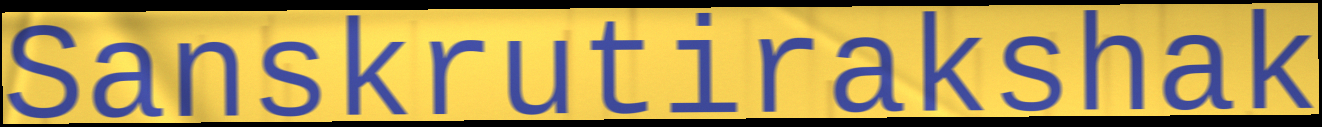
Sanskrutirakshak